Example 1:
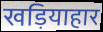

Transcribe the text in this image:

खड़ियाहार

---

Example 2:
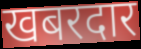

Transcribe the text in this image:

खबरदार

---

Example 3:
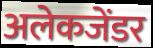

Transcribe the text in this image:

अलेकजेंडर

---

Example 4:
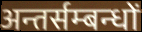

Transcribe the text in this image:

अन्तर्सम्बन्धों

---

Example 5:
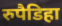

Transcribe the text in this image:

रुपैडिहा